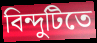
বিন্দুটিতে